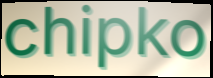
chipko